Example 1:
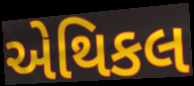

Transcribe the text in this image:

એથિકલ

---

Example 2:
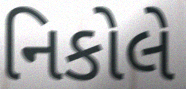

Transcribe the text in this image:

નિકોલે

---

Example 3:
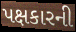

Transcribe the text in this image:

પક્ષકારની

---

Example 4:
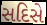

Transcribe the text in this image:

સદિસે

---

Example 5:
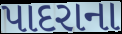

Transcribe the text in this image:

પાદરાના